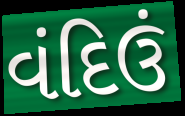
વંદિઉં